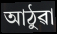
আঠুৱা